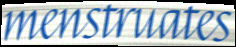
menstruates